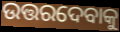
ଉତ୍ତରଦେବାକୁ